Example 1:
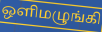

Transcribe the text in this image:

ஒளிமழுங்கி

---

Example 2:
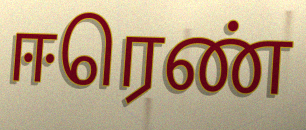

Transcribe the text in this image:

ஈரெண்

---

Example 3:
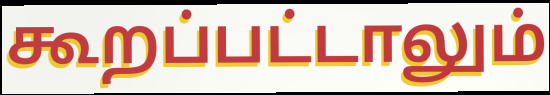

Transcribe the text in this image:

கூறப்பட்டாலும்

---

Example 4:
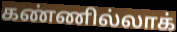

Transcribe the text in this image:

கண்ணில்லாக்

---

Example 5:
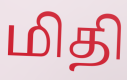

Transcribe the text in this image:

மிதி